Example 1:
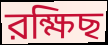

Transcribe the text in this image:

রক্ষিছ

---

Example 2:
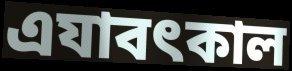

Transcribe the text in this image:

এযাবৎকাল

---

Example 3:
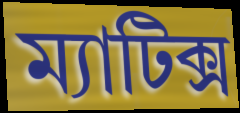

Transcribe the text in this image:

ম্যাটিক্স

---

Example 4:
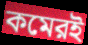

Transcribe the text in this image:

কমেরই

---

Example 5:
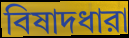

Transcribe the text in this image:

বিষাদধারা